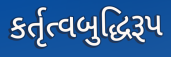
કર્તૃત્વબુદ્ધિરૂપ